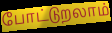
போட்டுறலாம்